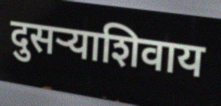
दुसऱ्याशिवाय